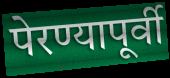
पेरण्यापूर्वी